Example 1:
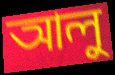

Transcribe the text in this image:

আলু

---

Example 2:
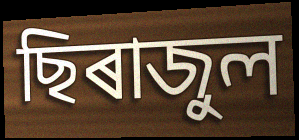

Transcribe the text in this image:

ছিৰাজুল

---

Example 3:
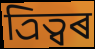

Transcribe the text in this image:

ত্ৰিত্বৰ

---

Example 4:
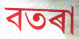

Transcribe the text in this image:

বতৰা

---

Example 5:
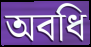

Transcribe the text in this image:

অবধি